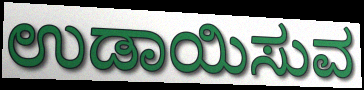
ಉಡಾಯಿಸುವ